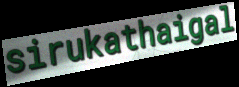
sirukathaigal